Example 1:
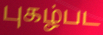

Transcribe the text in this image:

புகழ்பட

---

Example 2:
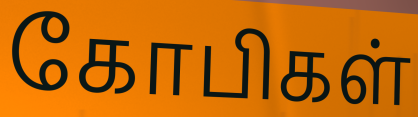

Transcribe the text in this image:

கோபிகள்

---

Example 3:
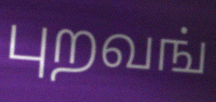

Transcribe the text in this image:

புறவங்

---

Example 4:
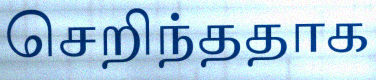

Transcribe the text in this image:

செறிந்ததாக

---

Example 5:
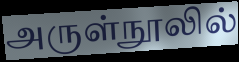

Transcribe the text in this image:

அருள்நூலில்